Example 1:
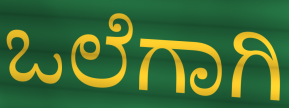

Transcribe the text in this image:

ಒಲೆಗಾಗಿ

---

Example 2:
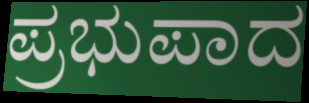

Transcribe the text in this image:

ಪ್ರಭುಪಾದ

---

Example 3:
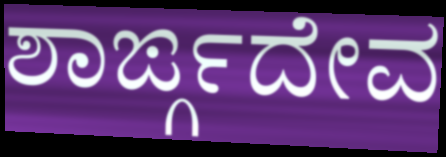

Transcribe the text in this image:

ಶಾರ್ಙ್ಗದೇವ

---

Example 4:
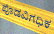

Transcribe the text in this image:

ಪೊಡವಿಗಧಿಕ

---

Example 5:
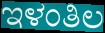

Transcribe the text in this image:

ಇಳಂತಿಲ